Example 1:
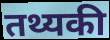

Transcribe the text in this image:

तथ्यकी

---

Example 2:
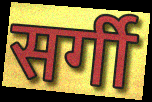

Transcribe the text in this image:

सर्गी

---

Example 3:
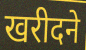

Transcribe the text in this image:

खरीदने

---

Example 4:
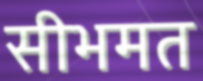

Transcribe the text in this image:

सीभमत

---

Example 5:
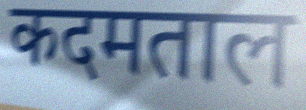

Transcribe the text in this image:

कदमताल